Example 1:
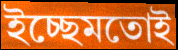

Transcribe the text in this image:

ইচ্ছেমতোই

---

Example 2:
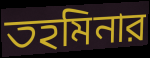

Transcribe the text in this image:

তহমিনার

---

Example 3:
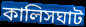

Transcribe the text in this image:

কালিসঘাট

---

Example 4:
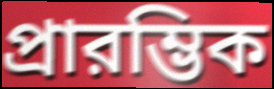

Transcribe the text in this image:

প্রারম্ভিক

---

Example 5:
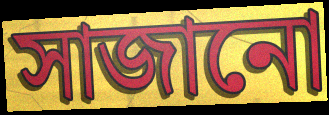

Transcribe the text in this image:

সাজানো